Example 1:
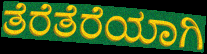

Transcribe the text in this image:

ತೆರೆತೆರೆಯಾಗಿ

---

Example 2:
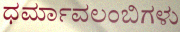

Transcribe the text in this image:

ಧರ್ಮಾವಲಂಬಿಗಳು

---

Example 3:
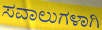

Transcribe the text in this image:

ಸವಾಲುಗಳಾಗಿ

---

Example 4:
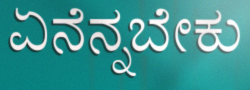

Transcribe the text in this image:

ಏನೆನ್ನಬೇಕು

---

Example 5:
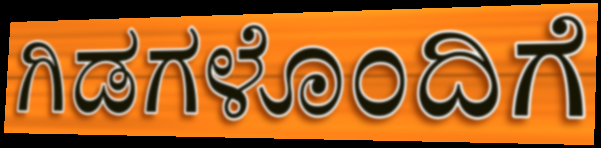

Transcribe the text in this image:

ಗಿಡಗಳೊಂದಿಗೆ